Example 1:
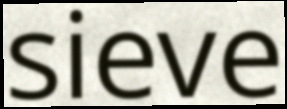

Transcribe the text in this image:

sieve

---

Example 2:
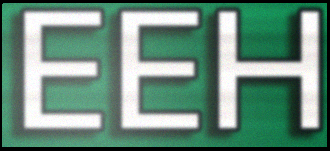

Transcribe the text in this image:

EEH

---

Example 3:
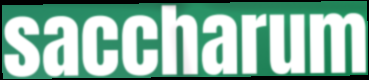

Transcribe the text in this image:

saccharum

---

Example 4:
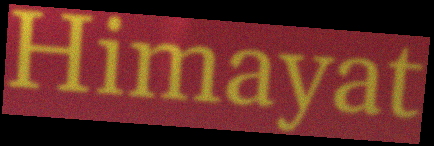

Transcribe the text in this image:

Himayat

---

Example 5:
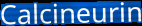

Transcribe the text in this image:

Calcineurin